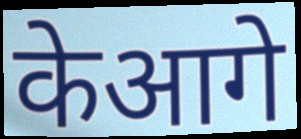
केआगे